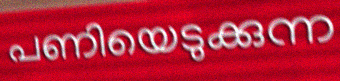
പണിയെടുക്കുന്ന